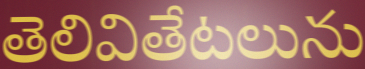
తెలివితేటలును